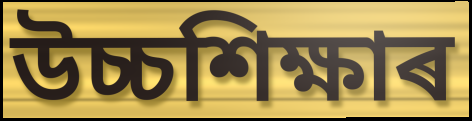
উচ্চশিক্ষাৰ